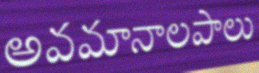
అవమానాలపాలు